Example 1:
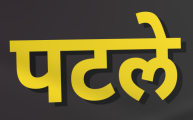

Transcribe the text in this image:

पटले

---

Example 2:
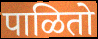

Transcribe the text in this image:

पाळितो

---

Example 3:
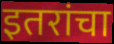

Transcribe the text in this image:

इतरांचा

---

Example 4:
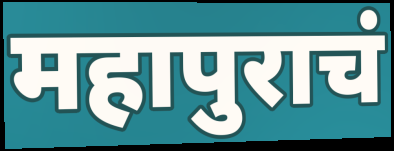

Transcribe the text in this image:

महापुराचं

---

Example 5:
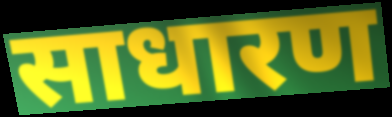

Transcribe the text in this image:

साधारण